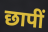
छापीं